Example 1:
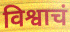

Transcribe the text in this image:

विश्वाचं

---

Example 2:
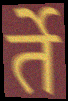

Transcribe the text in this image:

र्ते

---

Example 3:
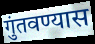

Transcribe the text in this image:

गुंतवण्यास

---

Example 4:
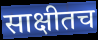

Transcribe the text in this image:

साक्षीतच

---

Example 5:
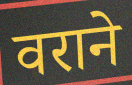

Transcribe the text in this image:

वराने